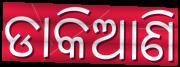
ଡାକିଆଣି